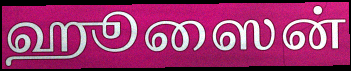
ஹூஸைன்